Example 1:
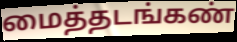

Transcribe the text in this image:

மைத்தடங்கண்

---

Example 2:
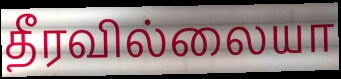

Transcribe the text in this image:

தீரவில்லையா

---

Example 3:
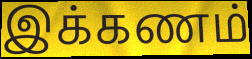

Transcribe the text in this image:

இக்கணம்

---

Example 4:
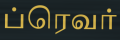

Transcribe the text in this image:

ப்ரெவர்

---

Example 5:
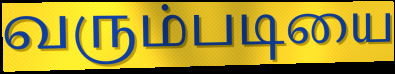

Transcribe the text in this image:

வரும்படியை